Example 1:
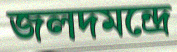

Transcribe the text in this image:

জলদমন্দ্রে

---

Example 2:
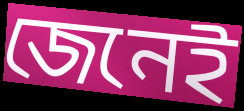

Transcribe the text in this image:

জেনেই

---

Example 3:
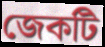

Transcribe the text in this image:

জেকটি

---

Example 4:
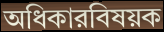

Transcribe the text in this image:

অধিকারবিষয়ক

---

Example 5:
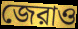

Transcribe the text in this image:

জেরাও